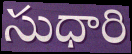
సుధారి